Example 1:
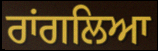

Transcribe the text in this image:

ਰਾਂਗਲਿਆ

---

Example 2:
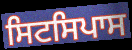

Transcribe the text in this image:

ਸਿਟਸਿਪਾਸ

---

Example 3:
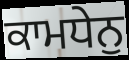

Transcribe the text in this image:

ਕਾਮਧੇਨੁ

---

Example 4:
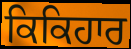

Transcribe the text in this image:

ਕਿਕਿਹਾਰ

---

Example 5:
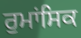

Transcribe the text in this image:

ਰੁਮਾਂਸਿਕ